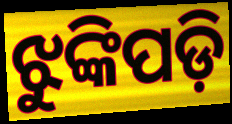
ଝୁଙ୍କିପଡ଼ି